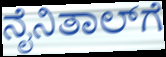
ನೈನಿತಾಲ್‌ಗೆ